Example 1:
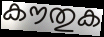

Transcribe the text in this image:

കൗതുക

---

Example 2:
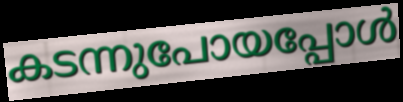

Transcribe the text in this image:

കടന്നുപോയപ്പോൾ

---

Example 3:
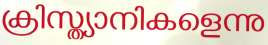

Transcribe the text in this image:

ക്രിസ്ത്യാനികളെന്നു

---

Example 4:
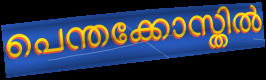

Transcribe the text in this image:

പെന്തക്കോസ്തിൽ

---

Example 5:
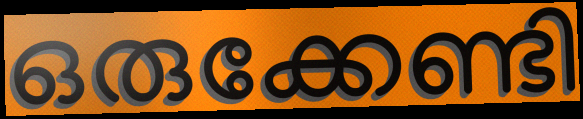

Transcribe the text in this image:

ഒരുക്കേണ്ടി